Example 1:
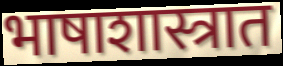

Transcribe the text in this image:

भाषाशास्त्रात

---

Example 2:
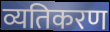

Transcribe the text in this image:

व्यतिकरण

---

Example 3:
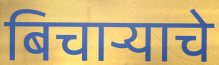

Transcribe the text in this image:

बिचाऱ्याचे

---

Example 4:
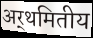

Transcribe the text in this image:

अर्थमितीय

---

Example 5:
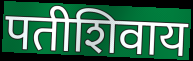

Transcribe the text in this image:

पतीशिवाय